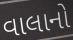
વાલાનો